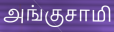
அங்குசாமி